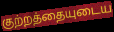
குற்றத்தையுடைய